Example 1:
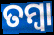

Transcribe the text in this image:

ତମ୍ୱା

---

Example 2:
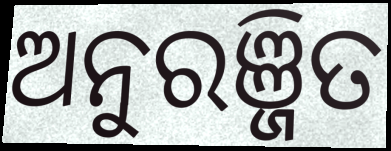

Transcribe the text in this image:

ଅନୁରଞ୍ଜିତ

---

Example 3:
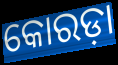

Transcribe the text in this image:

କୋରଡ଼ା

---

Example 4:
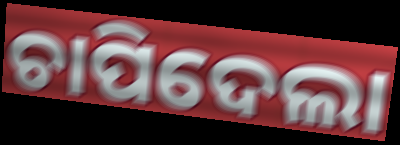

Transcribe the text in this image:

ଚାପିଦେଲା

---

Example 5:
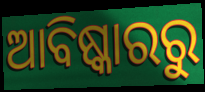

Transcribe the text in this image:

ଆବିଷ୍କାରରୁ